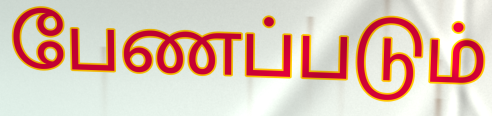
பேணப்படும்